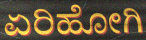
ಏರಿಹೋಗಿ